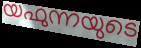
യഫുന്നയുടെ